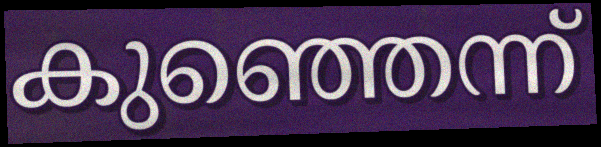
കുഞ്ഞെന്ന്